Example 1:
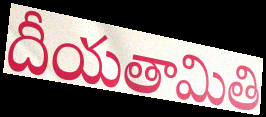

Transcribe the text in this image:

దీయతామితి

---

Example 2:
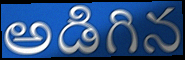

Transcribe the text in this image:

అడిగిన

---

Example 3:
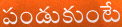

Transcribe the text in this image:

పండుకుంటే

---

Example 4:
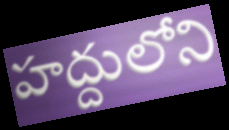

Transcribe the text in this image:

హద్దులోని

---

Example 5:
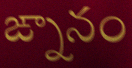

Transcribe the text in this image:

ఙ్నానం